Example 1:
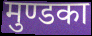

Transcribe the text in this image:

मुण्डका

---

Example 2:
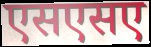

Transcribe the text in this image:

एसएसए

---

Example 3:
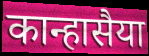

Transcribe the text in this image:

कान्हासैया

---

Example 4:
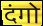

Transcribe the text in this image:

दंगो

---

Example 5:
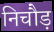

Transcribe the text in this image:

निचौड़